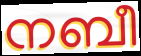
നബീ